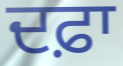
ਦਫ਼ਾ